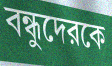
বন্ধুদেরকে